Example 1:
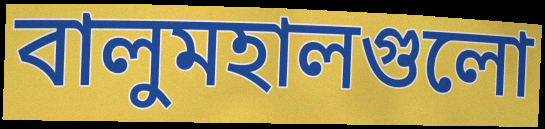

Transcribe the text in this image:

বালুমহালগুলো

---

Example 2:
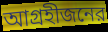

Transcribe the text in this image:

আগ্রহীজনের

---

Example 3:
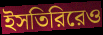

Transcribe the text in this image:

ইসতিরিরেও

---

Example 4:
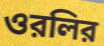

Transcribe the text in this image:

ওরলির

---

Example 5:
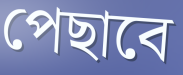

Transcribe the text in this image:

পেছাবে